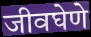
जीवघेणे